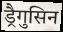
ड्रैगुसिन